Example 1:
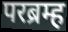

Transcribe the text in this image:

परब्रम्ह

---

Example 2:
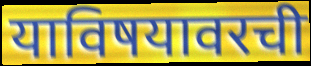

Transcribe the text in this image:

याविषयावरची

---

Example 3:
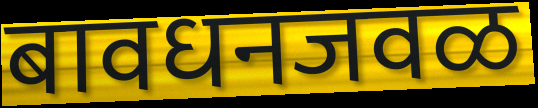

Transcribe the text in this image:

बावधनजवळ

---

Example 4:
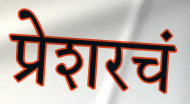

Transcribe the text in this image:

प्रेशरचं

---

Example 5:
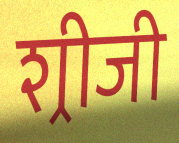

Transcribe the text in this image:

श्रीजी